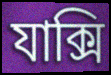
যাক্সি